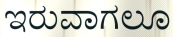
ಇರುವಾಗಲೂ